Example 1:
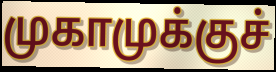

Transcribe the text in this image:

முகாமுக்குச்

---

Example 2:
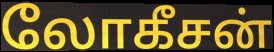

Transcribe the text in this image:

லோகீசன்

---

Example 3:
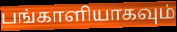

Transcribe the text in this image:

பங்காளியாகவும்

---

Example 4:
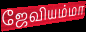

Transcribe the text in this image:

ஜேவியம்மா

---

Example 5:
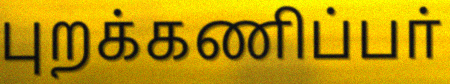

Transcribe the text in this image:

புறக்கணிப்பர்